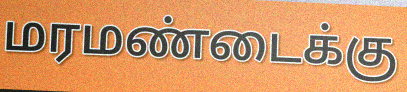
மரமண்டைக்கு